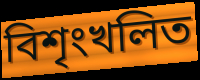
বিশৃংখলিত